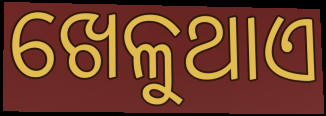
ଖେଳୁଥାଏ